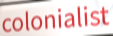
colonialist